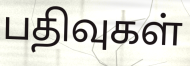
பதிவுகள்